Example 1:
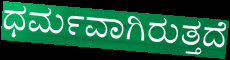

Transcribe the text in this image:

ಧರ್ಮವಾಗಿರುತ್ತದೆ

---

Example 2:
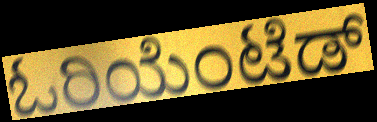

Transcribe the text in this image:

ಓರಿಯೆಂಟೆಡ್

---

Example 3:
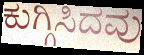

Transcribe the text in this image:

ಕುಗ್ಗಿಸಿದವು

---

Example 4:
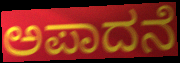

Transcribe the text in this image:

ಅಪಾದನೆ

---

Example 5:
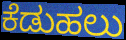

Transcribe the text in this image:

ಕೆಡುಹಲು